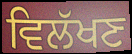
ਵਿਲੱਖਣ